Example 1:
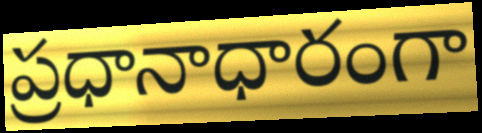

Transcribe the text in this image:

ప్రధానాధారంగా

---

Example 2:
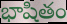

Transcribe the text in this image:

భాషితం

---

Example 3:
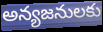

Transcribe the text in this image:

అన్యజనులకు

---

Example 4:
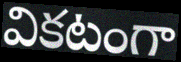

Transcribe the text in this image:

వికటంగా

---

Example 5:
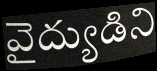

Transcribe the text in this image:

వైద్యుడిని